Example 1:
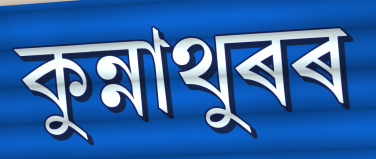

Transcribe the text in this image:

কুন্নাথুৰৰ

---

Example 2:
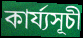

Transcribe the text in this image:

কাৰ্য্যসূচী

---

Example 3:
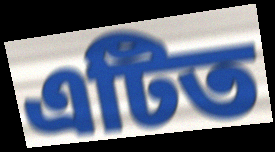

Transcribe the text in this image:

এটিত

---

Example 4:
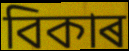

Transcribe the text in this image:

বিকাৰ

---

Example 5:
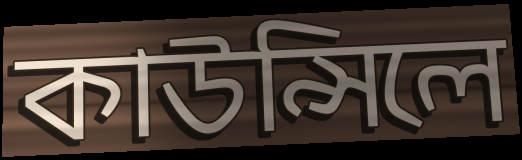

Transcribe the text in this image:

কাউন্সিলে